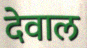
देवाल